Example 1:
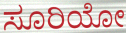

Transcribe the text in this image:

ಸೂರಿಯೋ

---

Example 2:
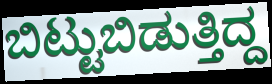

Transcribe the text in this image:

ಬಿಟ್ಟುಬಿಡುತ್ತಿದ್ದ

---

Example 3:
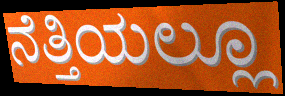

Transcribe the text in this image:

ನೆತ್ತಿಯಲ್ಲೂ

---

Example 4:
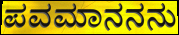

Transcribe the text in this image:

ಪವಮಾನನನು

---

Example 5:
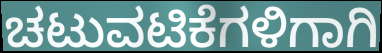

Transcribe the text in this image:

ಚಟುವಟಿಕೆಗಳಿಗಾಗಿ